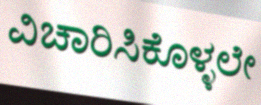
ವಿಚಾರಿಸಿಕೊಳ್ಳಲೇ